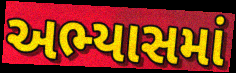
અભ્યાસમાં